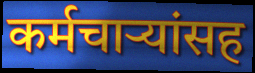
कर्मचाऱ्यांसह